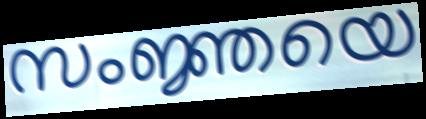
സംജ്ഞയെ